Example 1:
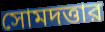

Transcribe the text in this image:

সোমদত্তার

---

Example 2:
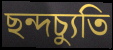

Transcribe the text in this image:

ছন্দচ্যুতি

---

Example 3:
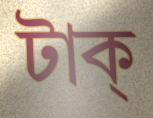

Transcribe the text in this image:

টাক্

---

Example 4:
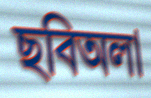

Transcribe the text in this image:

ছবিঅলা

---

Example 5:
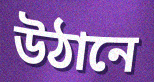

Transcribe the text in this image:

উঠানে